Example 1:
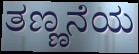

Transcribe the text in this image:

ತಣ್ಣನೆಯ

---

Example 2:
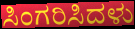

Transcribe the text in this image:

ಸಿಂಗರಿಸಿದಳು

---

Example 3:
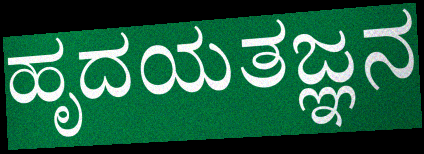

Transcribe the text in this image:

ಹೃದಯತಜ್ಞನ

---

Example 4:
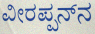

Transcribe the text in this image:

ವೀರಪ್ಪನ್‍ನ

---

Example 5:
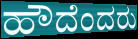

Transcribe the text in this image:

ಹೌದೆಂದರು